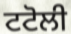
ਟਟੋਲੀ